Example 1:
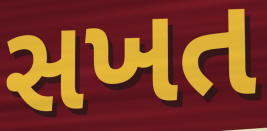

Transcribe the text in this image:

સખત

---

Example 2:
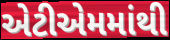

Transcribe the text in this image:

એટીએમમાંથી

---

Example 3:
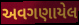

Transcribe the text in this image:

અવગણાયેલ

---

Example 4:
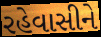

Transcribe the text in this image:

રહેવાસીને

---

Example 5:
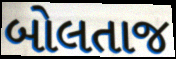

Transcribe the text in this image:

બોલતાજ